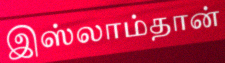
இஸ்லாம்தான்